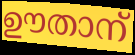
ഊതാന്